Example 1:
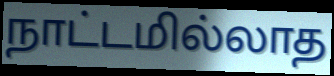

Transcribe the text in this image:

நாட்டமில்லாத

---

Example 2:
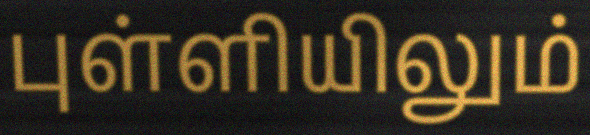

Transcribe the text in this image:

புள்ளியிலும்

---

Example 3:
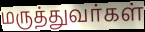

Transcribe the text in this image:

மருத்துவர்கள்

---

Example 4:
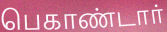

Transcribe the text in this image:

பெகாண்டார்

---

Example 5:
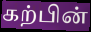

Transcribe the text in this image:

கற்பின்